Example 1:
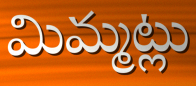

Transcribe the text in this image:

మిమ్మట్లు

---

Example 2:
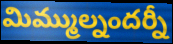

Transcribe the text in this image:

మిమ్ముల్నందర్నీ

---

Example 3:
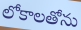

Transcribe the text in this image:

లోకాలతోను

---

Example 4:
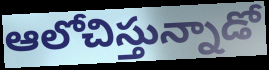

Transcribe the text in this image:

ఆలోచిస్తున్నాడో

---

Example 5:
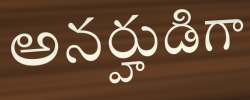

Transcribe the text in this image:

అనర్హుడిగా